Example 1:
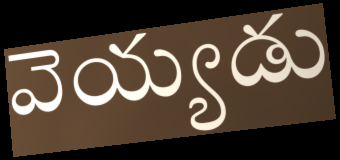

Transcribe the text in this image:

వెయ్యడు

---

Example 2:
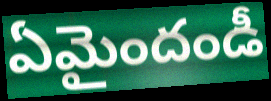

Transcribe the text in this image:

ఏమైందండీ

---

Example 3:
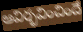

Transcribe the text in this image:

ఆవిర్భవించిందే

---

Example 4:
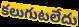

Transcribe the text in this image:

కలుగుటలేదు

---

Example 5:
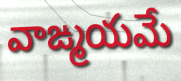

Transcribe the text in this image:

వాఙ్మయమే